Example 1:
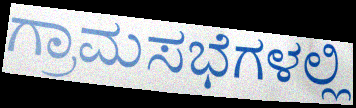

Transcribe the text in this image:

ಗ್ರಾಮಸಭೆಗಳಲ್ಲಿ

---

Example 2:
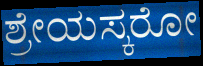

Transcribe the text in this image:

ಶ್ರೇಯಸ್ಕರೋ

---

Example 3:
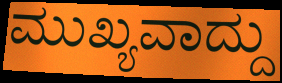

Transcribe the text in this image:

ಮುಖ್ಯವಾದ್ದು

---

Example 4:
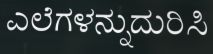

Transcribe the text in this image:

ಎಲೆಗಳನ್ನುದುರಿಸಿ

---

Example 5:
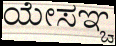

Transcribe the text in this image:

ಯೇಸಞ್ಚ